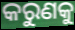
କରୁଣକୁ